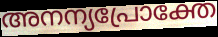
അനന്യപ്രോക്തേ